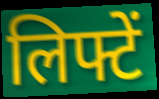
लिफ्टें